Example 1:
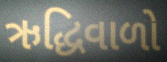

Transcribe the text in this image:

ઋદ્ધિવાળો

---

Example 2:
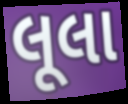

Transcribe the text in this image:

લૂલા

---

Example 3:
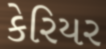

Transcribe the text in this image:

કેરિયર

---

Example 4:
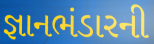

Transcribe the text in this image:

જ્ઞાનભંડારની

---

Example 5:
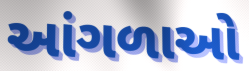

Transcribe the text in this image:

આંગળાઓ